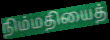
நிம்மதியைத்